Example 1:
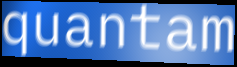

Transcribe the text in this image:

quantam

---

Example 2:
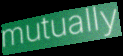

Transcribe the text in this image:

mutually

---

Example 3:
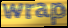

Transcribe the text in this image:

wrap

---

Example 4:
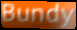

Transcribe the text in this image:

Bundy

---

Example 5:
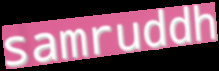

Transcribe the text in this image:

samruddh